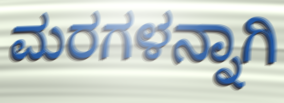
ಮರಗಳನ್ನಾಗಿ